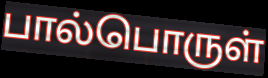
பால்பொருள்